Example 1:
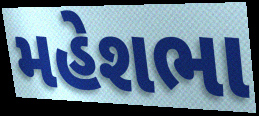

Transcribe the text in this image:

મહેશભા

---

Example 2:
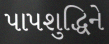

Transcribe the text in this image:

પાપશુદ્ધિને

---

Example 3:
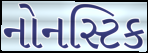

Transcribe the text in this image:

નોનસ્ટિક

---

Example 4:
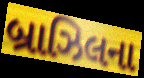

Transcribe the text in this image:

બ્રાઝિલના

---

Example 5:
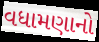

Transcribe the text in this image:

વધામણાનો